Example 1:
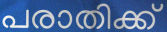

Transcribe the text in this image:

പരാതിക്ക്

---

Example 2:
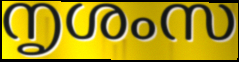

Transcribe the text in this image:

നൃശംസ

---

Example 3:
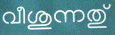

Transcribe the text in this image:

വീശുന്നതു്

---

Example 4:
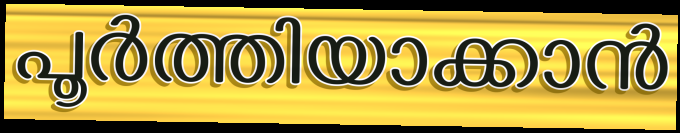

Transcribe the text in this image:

പൂർത്തിയാക്കാൻ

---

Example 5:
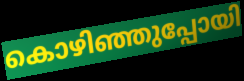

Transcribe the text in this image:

കൊഴിഞ്ഞുപ്പോയി